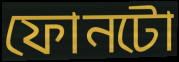
ফোনটো